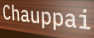
Chauppai